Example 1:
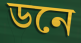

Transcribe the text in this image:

ডনে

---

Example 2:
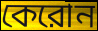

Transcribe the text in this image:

কেরোন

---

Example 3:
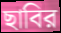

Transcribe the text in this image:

ছাবির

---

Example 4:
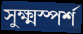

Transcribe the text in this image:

সুক্ষ্মস্পর্শ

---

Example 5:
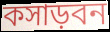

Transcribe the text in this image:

কসাড়বন